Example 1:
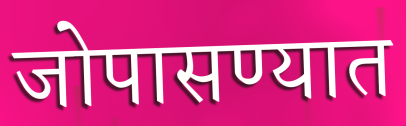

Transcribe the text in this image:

जोपासण्यात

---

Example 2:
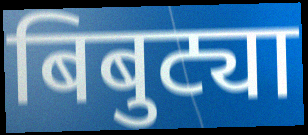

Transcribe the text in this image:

बिबुट्या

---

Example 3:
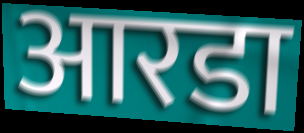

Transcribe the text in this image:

आरडा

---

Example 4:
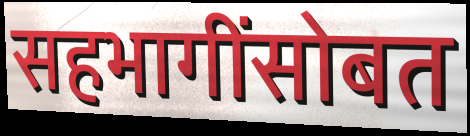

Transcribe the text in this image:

सहभागींसोबत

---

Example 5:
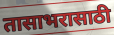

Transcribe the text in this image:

तासाभरासाठी